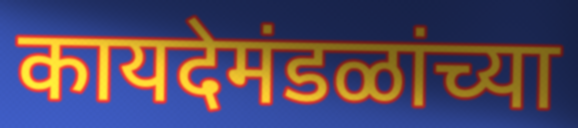
कायदेमंडळांच्या